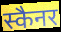
स्कैनर